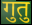
गुतु